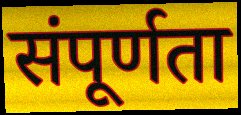
संपूर्णता